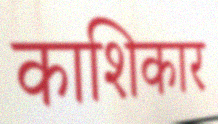
काशिकार